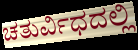
ಚತುರ್ವಿಧದಲ್ಲಿ